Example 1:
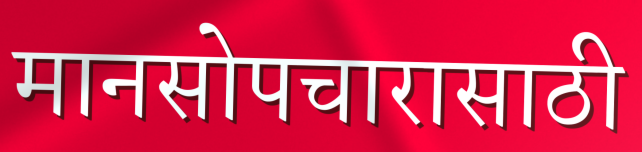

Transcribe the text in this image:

मानसोपचारासाठी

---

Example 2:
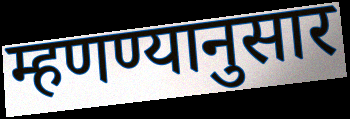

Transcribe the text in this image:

म्हणण्यानुसार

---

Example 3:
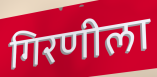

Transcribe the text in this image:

गिरणीला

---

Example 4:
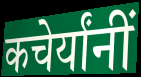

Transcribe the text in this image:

कचेर्यांनीं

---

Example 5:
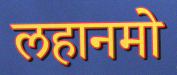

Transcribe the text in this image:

लहानमो